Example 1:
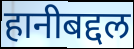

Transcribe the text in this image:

हानीबद्दल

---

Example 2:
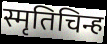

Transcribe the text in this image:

स्मृतिचिन्ह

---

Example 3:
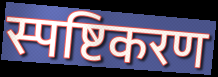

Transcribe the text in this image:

स्पष्टिकरण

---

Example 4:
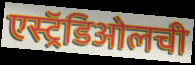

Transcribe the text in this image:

एस्ट्रॅडिओलची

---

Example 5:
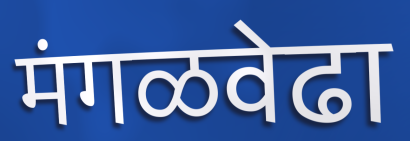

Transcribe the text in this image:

मंगळवेढा